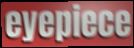
eyepiece